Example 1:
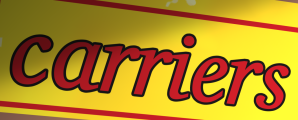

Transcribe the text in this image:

carriers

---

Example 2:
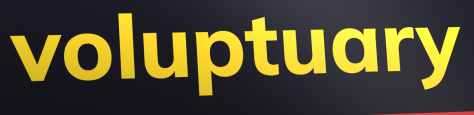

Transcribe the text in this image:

voluptuary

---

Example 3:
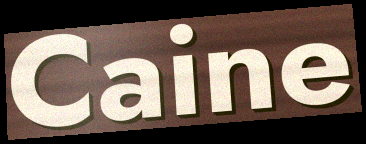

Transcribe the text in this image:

Caine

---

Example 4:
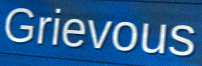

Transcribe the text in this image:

Grievous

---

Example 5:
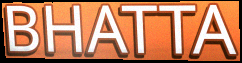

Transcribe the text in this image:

BHATTA